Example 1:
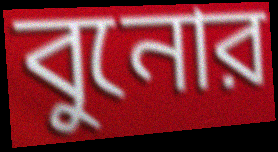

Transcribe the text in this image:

বুনোর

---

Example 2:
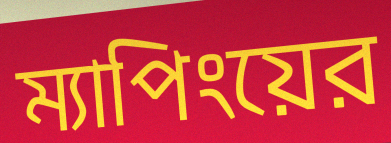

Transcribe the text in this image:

ম্যাপিংয়ের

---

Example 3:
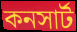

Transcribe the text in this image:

কনসার্ট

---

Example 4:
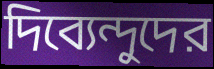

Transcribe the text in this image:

দিব্যেন্দুদের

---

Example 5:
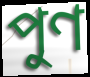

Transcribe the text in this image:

পুণ